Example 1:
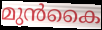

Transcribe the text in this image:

മുൻകൈ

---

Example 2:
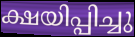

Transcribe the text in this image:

ക്ഷയിപ്പിച്ചു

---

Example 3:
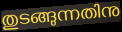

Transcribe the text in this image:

തുടങ്ങുന്നതിനു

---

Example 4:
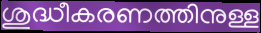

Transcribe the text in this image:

ശുദ്ധീകരണത്തിനുള്ള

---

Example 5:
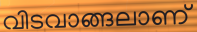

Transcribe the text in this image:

വിടവാങ്ങലാണ്